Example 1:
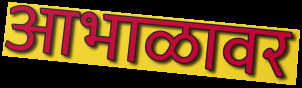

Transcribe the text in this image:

आभाळावर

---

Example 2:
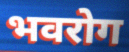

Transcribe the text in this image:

भवरोग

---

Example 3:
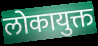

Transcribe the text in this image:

लोकायुक्त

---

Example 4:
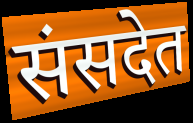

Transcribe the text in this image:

संसदेत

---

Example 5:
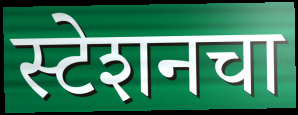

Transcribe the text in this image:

स्टेशनचा